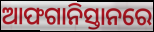
ଆଫଗାନିସ୍ତାନରେ